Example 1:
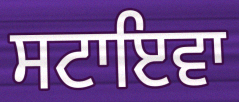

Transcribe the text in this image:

ਸਟਾਇਵਾ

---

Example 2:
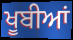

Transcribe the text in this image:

ਖੂਬੀਆਂ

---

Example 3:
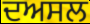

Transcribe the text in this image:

ਦਅਸਲ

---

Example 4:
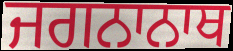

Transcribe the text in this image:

ਜਗਨਾਨਾਥ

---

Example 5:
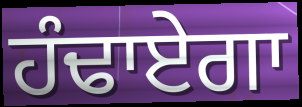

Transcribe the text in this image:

ਹੰਢਾਏਗਾ